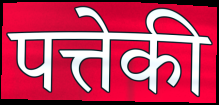
पत्तेकी